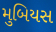
મુબિયસ